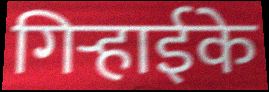
गिर्‍हाईके